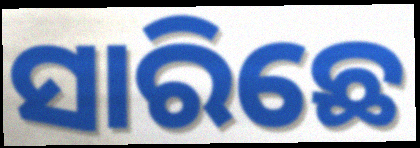
ସାରିଛେ